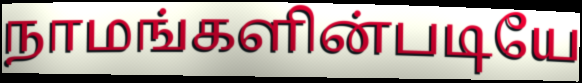
நாமங்களின்படியே